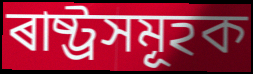
ৰাষ্ট্ৰসমূহক